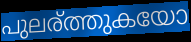
പുലര്ത്തുകയോ